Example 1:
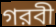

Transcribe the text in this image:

গরবী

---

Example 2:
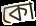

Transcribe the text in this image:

কো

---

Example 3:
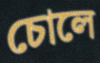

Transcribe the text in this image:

চোলে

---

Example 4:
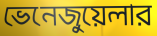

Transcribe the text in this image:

ভেনেজুয়েলার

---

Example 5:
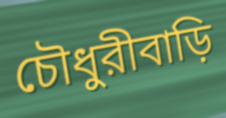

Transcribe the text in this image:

চৌধুরীবাড়ি